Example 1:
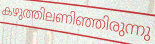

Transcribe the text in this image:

കഴുത്തിലണിഞ്ഞിരുന്നു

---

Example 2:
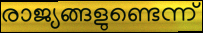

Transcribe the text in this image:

രാജ്യങ്ങളുണ്ടെന്ന്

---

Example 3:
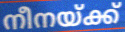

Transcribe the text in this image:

നീനയ്ക്ക്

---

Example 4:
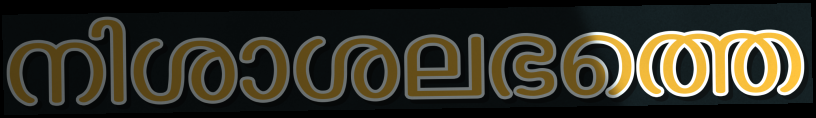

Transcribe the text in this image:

നിശാശലഭത്തെ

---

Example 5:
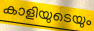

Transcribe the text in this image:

കാളിയുടെയും